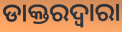
ଡାକ୍ତରଦ୍ୱାରା